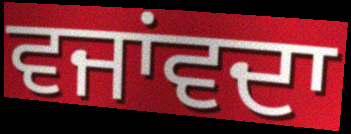
ਵਜਾਂਵਦਾ